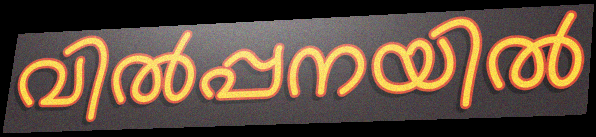
വിൽപ്പനയിൽ